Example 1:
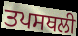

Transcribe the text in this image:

ਤਪਸਥਲੀ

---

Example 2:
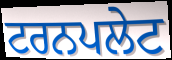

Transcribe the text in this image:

ਟਰਨਪਲੇਟ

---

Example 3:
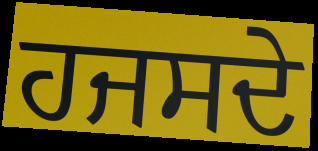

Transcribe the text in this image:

ਹਜਸਦੇ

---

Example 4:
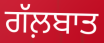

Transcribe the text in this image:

ਗੱਲ਼ਬਾਤ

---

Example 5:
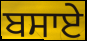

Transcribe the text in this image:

ਬਸਾਏ